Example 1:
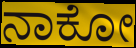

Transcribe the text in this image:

ನಾಕೋ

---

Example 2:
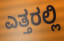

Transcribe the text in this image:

ಎತ್ತರಲ್ಲಿ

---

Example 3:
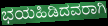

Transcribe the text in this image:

ಭಯಹಿಡಿದವರಾಗಿ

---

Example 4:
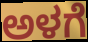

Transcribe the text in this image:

ಅಳಗೆ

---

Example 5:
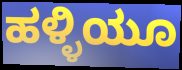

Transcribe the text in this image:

ಹಳ್ಳಿಯೂ